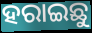
ହରାଇଛୁ